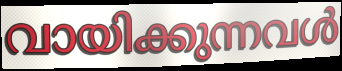
വായിക്കുന്നവൾ